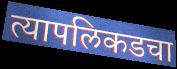
त्यापलिकडचा